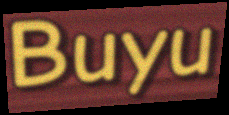
Buyu